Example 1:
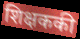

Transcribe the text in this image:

शिक्षककी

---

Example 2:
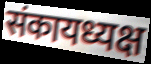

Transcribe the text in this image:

संकायध्यक्ष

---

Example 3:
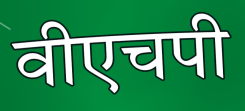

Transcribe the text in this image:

वीएचपी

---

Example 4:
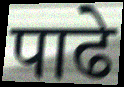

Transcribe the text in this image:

पाढे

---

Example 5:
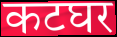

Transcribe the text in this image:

कटघर